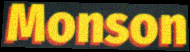
Monson